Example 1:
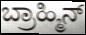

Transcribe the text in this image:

ಬ್ರಾಹ್ಮಿನ್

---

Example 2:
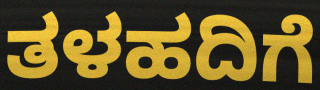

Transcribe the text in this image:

ತಳಹದಿಗೆ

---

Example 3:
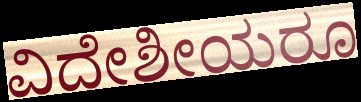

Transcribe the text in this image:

ವಿದೇಶೀಯರೂ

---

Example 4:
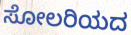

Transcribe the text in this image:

ಸೋಲರಿಯದ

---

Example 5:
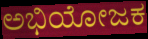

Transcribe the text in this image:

ಅಭಿಯೋಜಕ